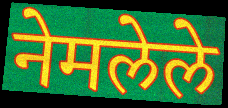
नेमलेले